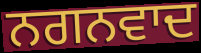
ਨਗਨਵਾਦ